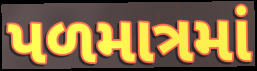
પળમાત્રમાં